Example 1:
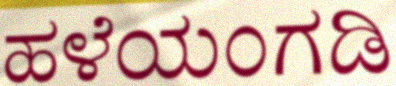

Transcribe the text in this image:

ಹಳೆಯಂಗಡಿ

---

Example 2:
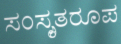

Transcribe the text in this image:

ಸಂಸ್ಕೃತರೂಪ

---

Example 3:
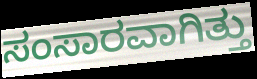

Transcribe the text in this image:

ಸಂಸಾರವಾಗಿತ್ತು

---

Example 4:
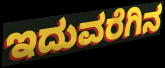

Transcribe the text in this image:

ಇದುವರೆಗಿನ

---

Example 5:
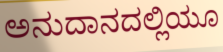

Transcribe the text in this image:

ಅನುದಾನದಲ್ಲಿಯೂ